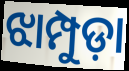
ଝାମ୍ପୁଡ଼ା